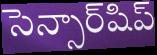
సెన్సార్‌షిప్